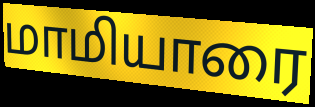
மாமியாரை